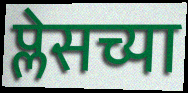
प्लेसच्या